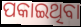
ପକାଇଥିବା